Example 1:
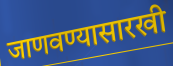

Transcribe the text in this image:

जाणवण्यासारखी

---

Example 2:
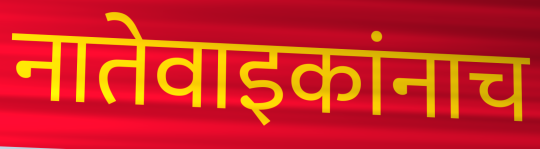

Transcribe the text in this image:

नातेवाइकांनाच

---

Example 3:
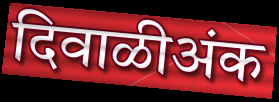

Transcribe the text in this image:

दिवाळीअंक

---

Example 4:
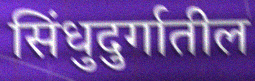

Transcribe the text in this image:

सिंधुदुर्गातील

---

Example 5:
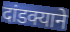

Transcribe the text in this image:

दांडक्याने